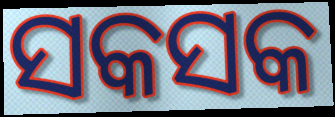
ସକସକ